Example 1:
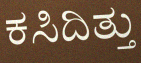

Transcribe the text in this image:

ಕಸಿದಿತ್ತು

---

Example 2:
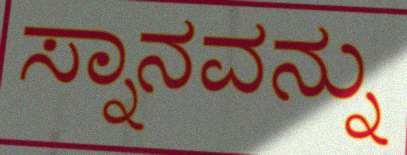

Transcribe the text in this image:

ಸ್ನಾನವನ್ನು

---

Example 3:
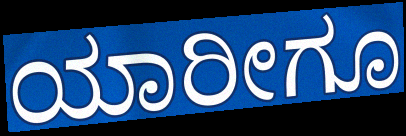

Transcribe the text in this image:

ಯಾರೀಗೂ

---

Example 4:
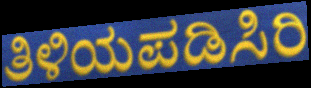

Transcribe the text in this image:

ತಿಳಿಯಪಡಿಸಿರಿ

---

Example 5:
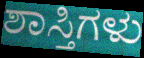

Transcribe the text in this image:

ಶಾಸ್ತಿಗಳು